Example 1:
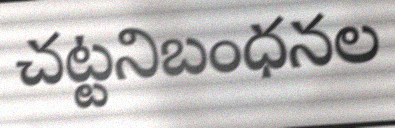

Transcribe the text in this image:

చట్టనిబంధనల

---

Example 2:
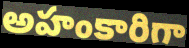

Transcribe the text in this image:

అహంకారిగా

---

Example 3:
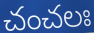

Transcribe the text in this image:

చంచలః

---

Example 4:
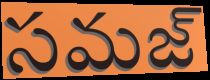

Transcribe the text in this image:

సమజ్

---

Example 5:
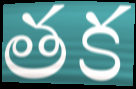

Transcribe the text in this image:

తక